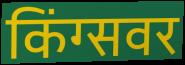
किंग्सवर